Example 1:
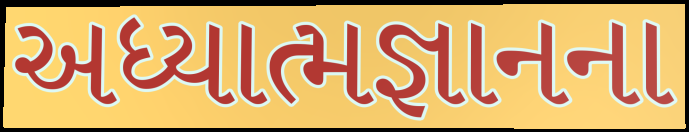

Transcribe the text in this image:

અધ્યાત્મજ્ઞાનના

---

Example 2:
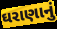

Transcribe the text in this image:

ઘરાણાનું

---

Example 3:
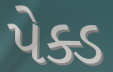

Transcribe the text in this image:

પેક્ડ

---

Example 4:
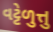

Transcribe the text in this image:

વટ્ટેળુત્તુ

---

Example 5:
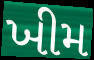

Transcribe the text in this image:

ખીમ